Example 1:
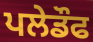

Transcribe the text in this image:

ਪਲੇਡੌਫ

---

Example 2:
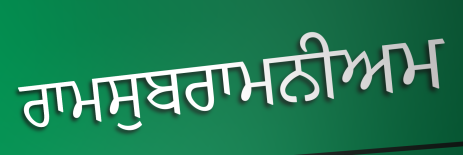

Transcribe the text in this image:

ਰਾਮਸੁਬਰਾਮਨੀਅਮ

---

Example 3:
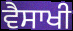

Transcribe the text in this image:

ਵੈਸਾਖੀ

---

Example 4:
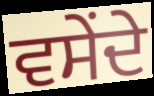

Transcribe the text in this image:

ਵਸੇਂਦੇ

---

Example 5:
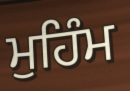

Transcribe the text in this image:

ਮੁਹਿੰਮ